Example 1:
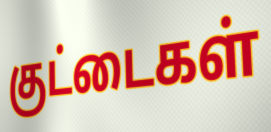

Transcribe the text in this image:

குட்டைகள்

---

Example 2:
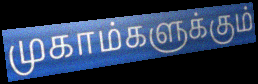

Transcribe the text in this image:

முகாம்களுக்கும்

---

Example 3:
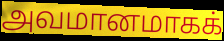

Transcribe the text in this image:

அவமானமாகக்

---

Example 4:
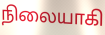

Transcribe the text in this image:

நிலையாகி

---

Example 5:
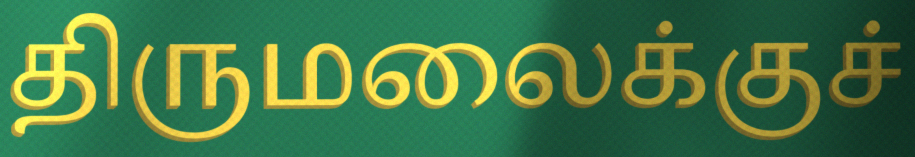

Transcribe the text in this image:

திருமலைக்குச்